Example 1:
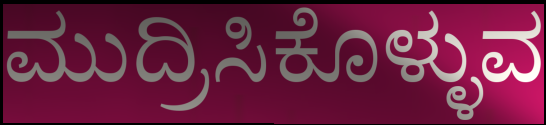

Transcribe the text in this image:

ಮುದ್ರಿಸಿಕೊಳ್ಳುವ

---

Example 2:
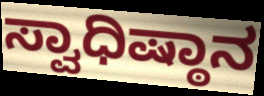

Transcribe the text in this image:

ಸ್ವಾಧಿಷ್ಠಾನ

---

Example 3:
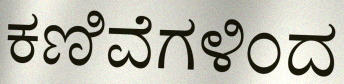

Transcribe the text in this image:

ಕಣಿವೆಗಳಿಂದ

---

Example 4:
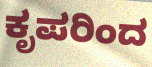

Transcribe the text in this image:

ಕೃಪರಿಂದ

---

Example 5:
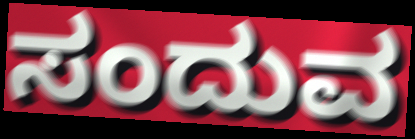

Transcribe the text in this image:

ಸಂದುವ